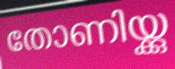
തോണിയ്ക്കു